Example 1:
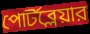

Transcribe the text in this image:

পোর্টব্লেয়ার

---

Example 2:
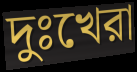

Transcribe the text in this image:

দুঃখেরা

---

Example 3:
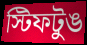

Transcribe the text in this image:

স্টিফটুঙ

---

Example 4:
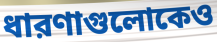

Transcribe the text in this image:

ধারণাগুলোকেও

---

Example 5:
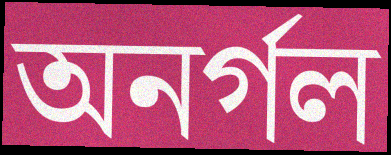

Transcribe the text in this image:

অনর্গল